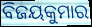
ବିଜୟକୁମାର